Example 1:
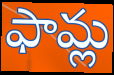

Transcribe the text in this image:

ఫామ్ల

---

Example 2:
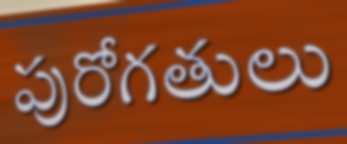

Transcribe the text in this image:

పురోగతులు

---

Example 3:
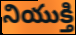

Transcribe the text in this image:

నియుక్తి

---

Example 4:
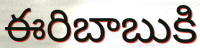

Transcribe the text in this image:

ఈరిబాబుకి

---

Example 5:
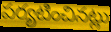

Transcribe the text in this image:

పర్యటించినట్లు